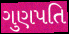
ગુણપતિ